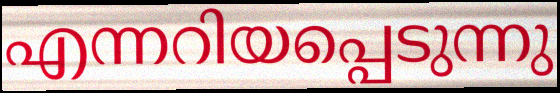
എന്നറിയപ്പെടുന്നു